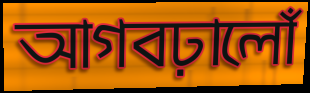
আগবঢ়ালোঁ